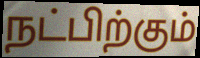
நட்பிற்கும்